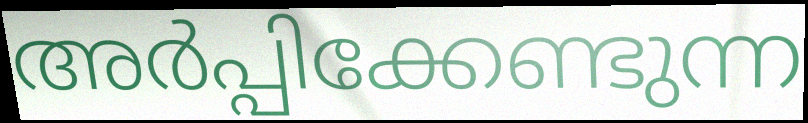
അർപ്പിക്കേണ്ടുന്ന